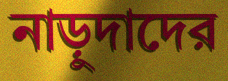
নাড়ুদাদের